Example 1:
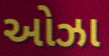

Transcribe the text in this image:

ઓઝા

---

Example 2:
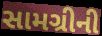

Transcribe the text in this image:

સામગ્રીની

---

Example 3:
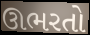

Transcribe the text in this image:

ઊભરતો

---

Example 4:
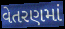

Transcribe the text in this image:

વેતરણમાં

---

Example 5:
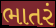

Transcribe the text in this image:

ભાતરં